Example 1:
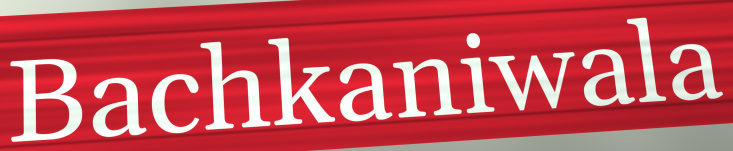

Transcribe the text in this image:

Bachkaniwala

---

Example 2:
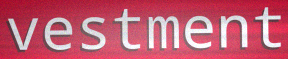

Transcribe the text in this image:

vestment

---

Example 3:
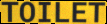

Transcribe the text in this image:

TOILET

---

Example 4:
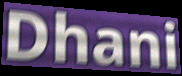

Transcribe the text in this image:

Dhani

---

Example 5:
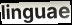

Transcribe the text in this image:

linguae